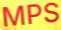
MPS